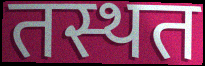
तस्थत